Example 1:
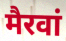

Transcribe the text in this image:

मैरवां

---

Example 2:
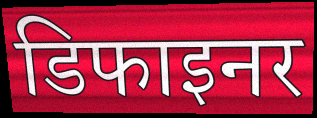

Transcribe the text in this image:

डिफाइनर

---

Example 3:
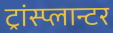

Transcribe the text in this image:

ट्रांस्प्लान्टर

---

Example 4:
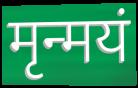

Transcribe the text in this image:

मृन्मयं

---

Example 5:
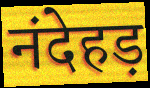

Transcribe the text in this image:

नंदेहड़